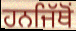
ਹਨਜਿੱਥੋਂ